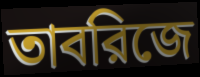
তাবরিজে